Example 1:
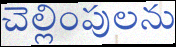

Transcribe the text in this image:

చెల్లింపులను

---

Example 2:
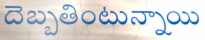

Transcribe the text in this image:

దెబ్బతింటున్నాయి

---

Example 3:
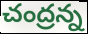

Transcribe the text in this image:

చంద్రన్న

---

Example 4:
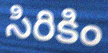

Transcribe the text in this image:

సిరికిం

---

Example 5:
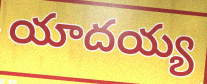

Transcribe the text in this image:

యాదయ్య